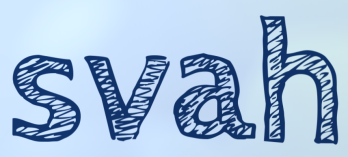
svah